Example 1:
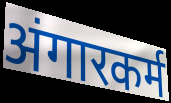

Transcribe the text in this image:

अंगारकर्म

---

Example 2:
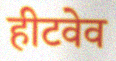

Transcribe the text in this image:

हीटवेव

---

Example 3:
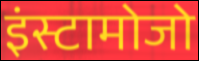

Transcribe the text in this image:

इंस्टामोजो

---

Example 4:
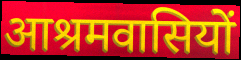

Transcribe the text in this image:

आश्रमवासियों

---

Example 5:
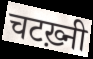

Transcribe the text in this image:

चटख़्नी